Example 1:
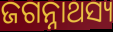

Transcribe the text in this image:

ଜଗନ୍ନାଥସ୍ୟ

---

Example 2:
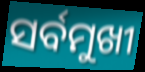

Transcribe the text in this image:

ସର୍ବମୁଖୀ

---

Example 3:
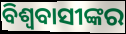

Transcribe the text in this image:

ବିଶ୍ୱବାସୀଙ୍କର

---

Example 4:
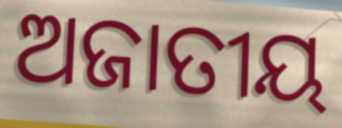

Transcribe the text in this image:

ଅଜାତୀୟ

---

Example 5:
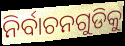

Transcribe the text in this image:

ନିର୍ବାଚନଗୁଡିକୁ